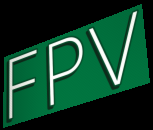
FPV